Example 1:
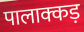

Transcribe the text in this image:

पालाक्कड़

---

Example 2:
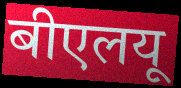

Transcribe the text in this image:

बीएलयू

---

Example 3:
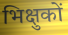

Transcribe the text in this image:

भिक्षुकों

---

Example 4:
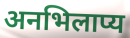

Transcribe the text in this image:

अनभिलाप्य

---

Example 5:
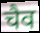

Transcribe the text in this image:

चैव